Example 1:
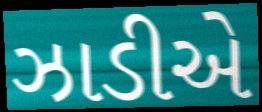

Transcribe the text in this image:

ઝાડીએ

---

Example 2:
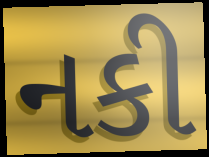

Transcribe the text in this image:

નકી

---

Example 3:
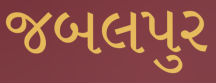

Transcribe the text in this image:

જબલપુર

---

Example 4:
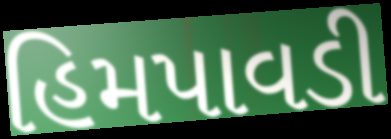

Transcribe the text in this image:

હિમપાવડી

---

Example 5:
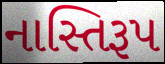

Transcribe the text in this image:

નાસ્તિરૂપ